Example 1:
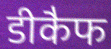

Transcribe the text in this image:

डीकैफ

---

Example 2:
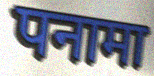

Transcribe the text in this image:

पनामा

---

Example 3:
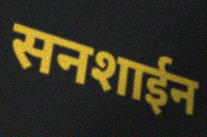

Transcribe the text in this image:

सनशाईन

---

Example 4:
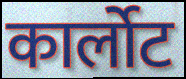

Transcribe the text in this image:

कार्लोट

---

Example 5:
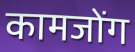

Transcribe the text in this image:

कामजोंग